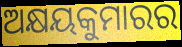
ଅକ୍ଷୟକୁମାରର